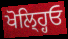
ਖੋਲ੍ਹ੍ਹਿਓ